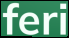
feri